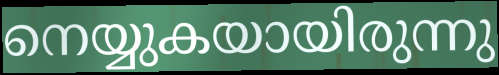
നെയ്യുകയായിരുന്നു